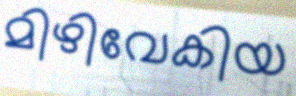
മിഴിവേകിയ